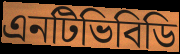
এনটিভিবিডি